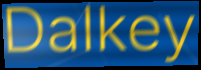
Dalkey